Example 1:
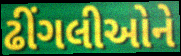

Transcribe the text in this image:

ઢીંગલીઓને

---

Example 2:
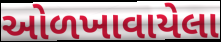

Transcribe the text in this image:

ઓળખાવાયેલા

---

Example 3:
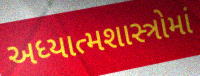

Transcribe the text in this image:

અધ્યાત્મશાસ્ત્રોમાં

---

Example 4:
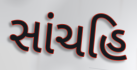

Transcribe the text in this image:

સાંચહિ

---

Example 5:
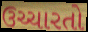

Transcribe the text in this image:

ઉચ્ચારતો